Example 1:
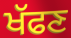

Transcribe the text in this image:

ਖੱਫਣ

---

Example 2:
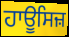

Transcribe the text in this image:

ਹਾਊਸਿਜ਼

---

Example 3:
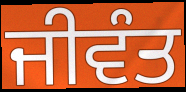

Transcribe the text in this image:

ਜੀਵੰਤ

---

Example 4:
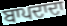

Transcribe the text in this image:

ਬਾਪਦਾਦਾ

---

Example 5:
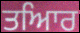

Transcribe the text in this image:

ਤਆਿਰ